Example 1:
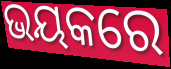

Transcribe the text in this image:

ଭୟକରେ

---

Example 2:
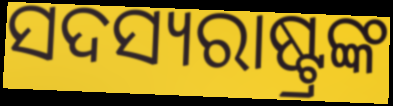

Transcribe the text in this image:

ସଦସ୍ୟରାଷ୍ଟ୍ରଙ୍କ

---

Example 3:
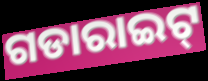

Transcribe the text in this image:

ଗଡାରାଇଟ୍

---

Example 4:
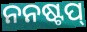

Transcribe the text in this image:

ନନଷ୍ଟପ୍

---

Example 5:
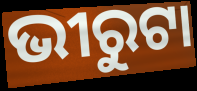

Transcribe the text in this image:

ଭୀରୁଟା